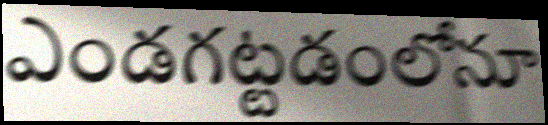
ఎండగట్టడంలోనూ